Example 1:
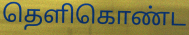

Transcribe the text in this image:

தெளிகொண்ட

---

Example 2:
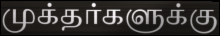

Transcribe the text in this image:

முக்தர்களுக்கு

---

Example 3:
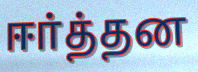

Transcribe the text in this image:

ஈர்த்தன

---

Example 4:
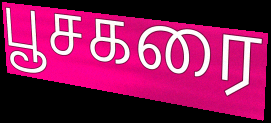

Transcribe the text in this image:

பூசகரை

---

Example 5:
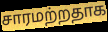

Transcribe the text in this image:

சாரமற்றதாக